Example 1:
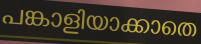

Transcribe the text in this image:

പങ്കാളിയാക്കാതെ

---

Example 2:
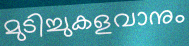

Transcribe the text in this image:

മുടിച്ചുകളവാനും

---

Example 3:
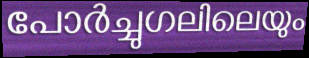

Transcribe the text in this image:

പോർച്ചുഗലിലെയും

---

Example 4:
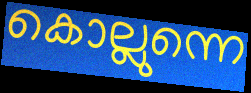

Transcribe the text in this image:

കൊല്ലുന്നെ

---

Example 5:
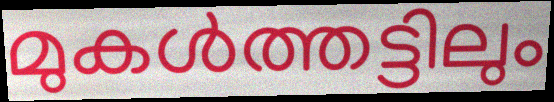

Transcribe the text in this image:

മുകൾത്തട്ടിലും